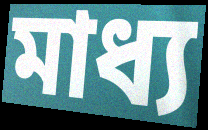
মাধ্য